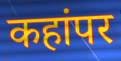
कहांपर